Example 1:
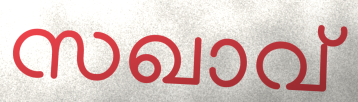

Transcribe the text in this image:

സഖാവ്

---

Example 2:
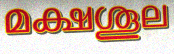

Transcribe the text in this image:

മക്ഷശൂല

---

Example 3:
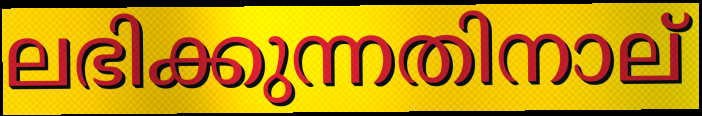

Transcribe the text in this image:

ലഭിക്കുന്നതിനാല്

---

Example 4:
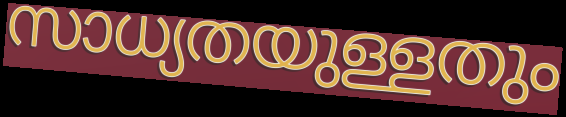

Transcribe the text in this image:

സാധ്യതയുള്ളതും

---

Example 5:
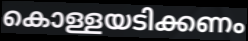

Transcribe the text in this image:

കൊള്ളയടിക്കണം